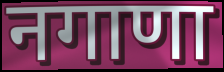
नगाणा